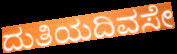
ದುತಿಯದಿವಸೇ